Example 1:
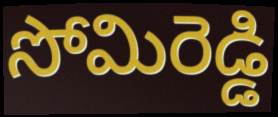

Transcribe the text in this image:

సోమిరెడ్డి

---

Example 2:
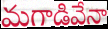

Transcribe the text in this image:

మగాడివేనా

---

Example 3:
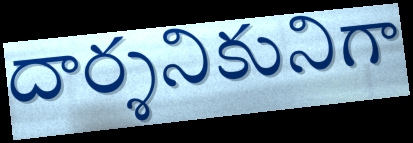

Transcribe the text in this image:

దార్శనికునిగా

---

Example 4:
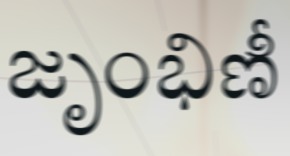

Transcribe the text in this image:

జృంభిణీ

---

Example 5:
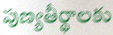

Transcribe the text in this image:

పుణ్యతీర్థాలకు